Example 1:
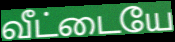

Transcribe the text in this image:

வீட்டையே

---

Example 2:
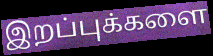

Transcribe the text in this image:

இறப்புக்களை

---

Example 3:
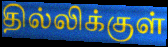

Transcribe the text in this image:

தில்லிக்குள்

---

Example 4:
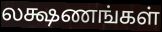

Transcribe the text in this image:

லக்ஷணங்கள்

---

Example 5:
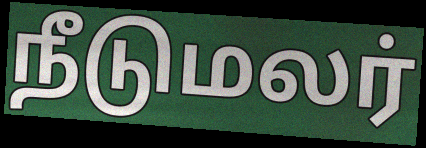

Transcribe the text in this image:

நீடுமலர்